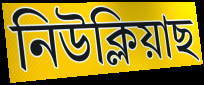
নিউক্লিয়াছ